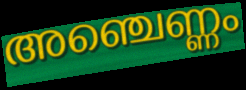
അഞ്ചെണ്ണം